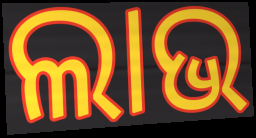
ଲାଭ